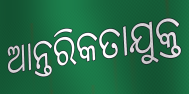
ଆନ୍ତରିକତାଯୁକ୍ତ